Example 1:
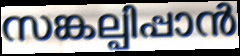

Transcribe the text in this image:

സങ്കല്പിപ്പാൻ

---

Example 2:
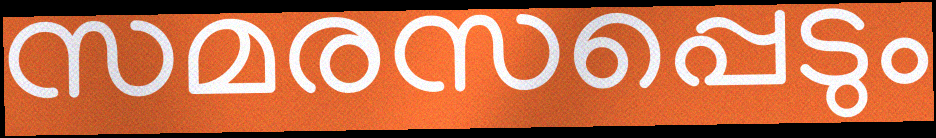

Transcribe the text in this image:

സമരസപ്പെടും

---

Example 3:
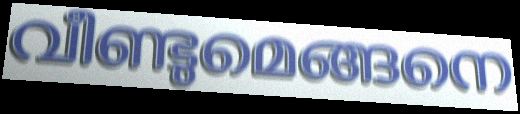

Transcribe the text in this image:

വീണ്ടുമെങ്ങനെ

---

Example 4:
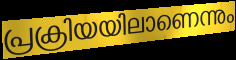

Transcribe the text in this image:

പ്രക്രിയയിലാണെന്നും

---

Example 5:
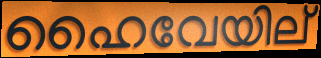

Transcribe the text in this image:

ഹൈവേയില്